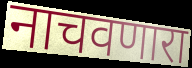
नाचवणारा